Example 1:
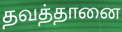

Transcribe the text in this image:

தவத்தானை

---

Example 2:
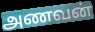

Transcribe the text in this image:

அணவன்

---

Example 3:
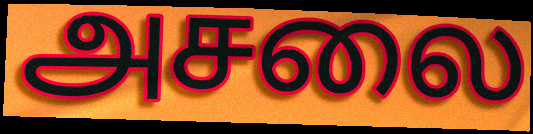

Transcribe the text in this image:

அசலை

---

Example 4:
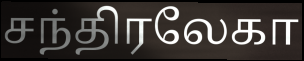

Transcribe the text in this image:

சந்திரலேகா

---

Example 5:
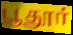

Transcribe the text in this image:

பூதூர்